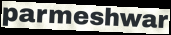
parmeshwar